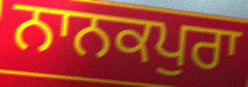
ਨਾਨਕਪੁਰਾ